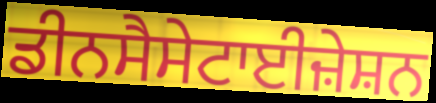
ਡੀਨਸੈਸੇਟਾਈਜ਼ੇਸ਼ਨ